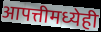
आपत्तीमध्येही